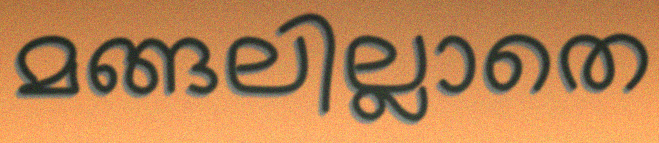
മങ്ങലില്ലാതെ